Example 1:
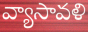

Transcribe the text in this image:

వ్యాసావళి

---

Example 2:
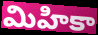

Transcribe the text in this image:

మిహికా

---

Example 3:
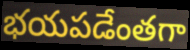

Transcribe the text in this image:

భయపడేంతగా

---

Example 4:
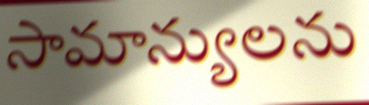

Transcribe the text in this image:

సామాన్యులను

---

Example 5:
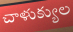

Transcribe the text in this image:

చాళుక్యుల